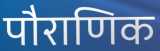
पौराणिक